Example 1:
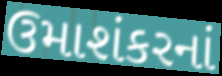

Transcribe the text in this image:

ઉમાશંકરનાં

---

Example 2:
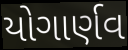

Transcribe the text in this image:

યોગાર્ણવ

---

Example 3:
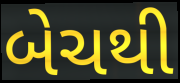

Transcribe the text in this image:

બેચથી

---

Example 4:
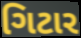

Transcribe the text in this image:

ગિટાર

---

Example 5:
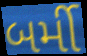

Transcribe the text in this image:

બર્મી